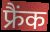
फ्रैंक